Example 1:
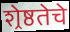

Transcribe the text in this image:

श्रेष्ठतेचे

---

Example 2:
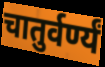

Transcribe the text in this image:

चातुर्वर्ण्यं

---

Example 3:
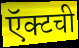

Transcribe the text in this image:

ऍक्टची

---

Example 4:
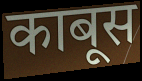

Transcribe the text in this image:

काबूस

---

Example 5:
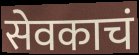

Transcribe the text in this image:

सेवकाचं